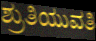
ಶ್ರುತಿಯುವತಿ